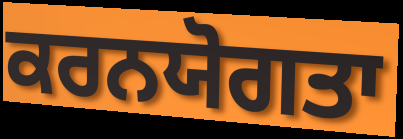
ਕਰਨਯੋਗਤਾ